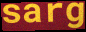
sarg